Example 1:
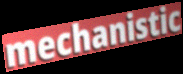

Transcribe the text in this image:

mechanistic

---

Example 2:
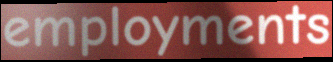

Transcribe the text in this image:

employments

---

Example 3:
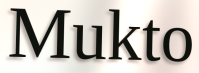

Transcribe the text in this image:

Mukto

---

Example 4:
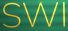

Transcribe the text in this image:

SWI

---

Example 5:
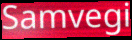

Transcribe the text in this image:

Samvegi